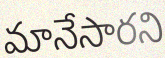
మానేసారని